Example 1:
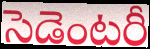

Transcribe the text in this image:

సెడెంటరీ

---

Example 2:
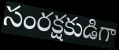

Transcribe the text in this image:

సంరక్షకుడిగా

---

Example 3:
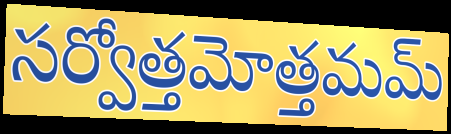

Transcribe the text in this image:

సర్వోత్తమోత్తమమ్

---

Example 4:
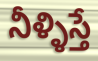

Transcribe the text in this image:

నీళ్ళిస్తే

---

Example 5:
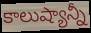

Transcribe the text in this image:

కాలుష్యాన్నీ